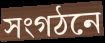
সংগঠনে